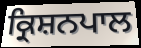
ਕ੍ਰਿਸ਼ਨਪਾਲ